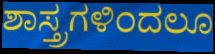
ಶಾಸ್ತ್ರಗಳಿಂದಲೂ